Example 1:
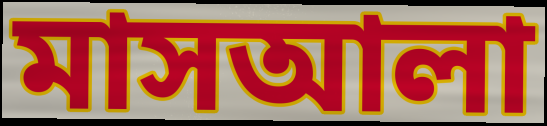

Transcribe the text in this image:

মাসআলা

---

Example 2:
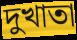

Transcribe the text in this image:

দুখাতা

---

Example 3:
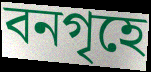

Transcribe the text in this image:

বনগৃহে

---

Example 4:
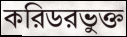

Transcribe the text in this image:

করিডরভুক্ত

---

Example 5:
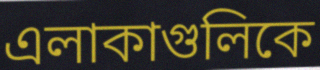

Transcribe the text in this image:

এলাকাগুলিকে